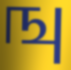
ஙு